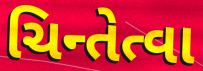
ચિન્તેત્વા